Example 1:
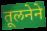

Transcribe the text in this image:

तूलनेने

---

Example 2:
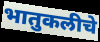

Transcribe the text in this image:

भातुकलीचे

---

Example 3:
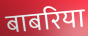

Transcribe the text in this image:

बाबरिया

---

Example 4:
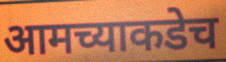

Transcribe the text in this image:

आमच्याकडेच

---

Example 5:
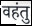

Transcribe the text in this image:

वहंतु